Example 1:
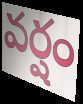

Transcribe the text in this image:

వర్షం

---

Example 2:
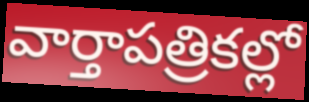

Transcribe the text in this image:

వార్తాపత్రికల్లో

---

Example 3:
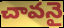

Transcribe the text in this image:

చావనై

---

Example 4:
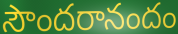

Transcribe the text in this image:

సౌందరానందం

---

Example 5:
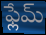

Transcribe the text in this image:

ఫ్లేమ్